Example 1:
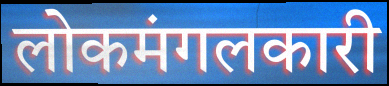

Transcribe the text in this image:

लोकमंगलकारी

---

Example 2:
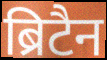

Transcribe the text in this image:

ब्रिटैन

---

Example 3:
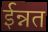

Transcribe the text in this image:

ईन्नत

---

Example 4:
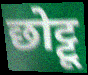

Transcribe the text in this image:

छोट्टू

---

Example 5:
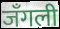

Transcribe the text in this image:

जँगली